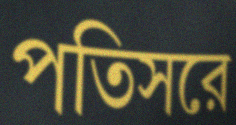
পতিসরে